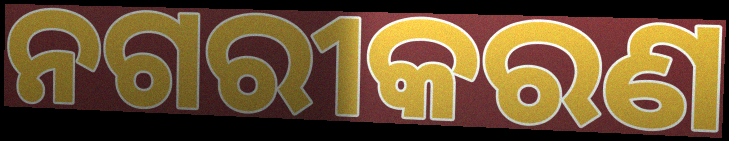
ନଗରୀକରଣ